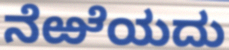
ನೆಱೆಯದು